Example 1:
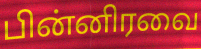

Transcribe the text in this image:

பின்னிரவை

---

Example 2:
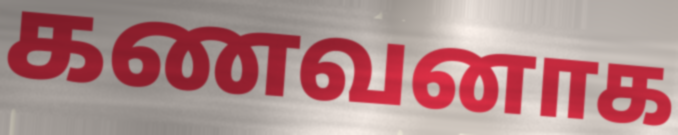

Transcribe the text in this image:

கணவனாக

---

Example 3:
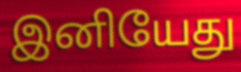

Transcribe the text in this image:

இனியேது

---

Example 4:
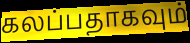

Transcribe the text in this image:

கலப்பதாகவும்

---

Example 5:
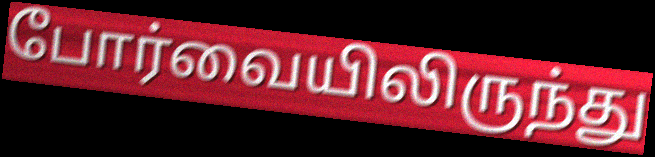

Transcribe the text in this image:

போர்வையிலிருந்து